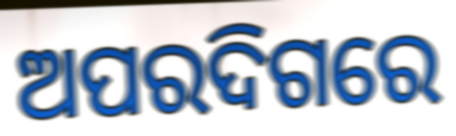
ଅପରଦିଗରେ